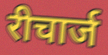
रीचार्ज